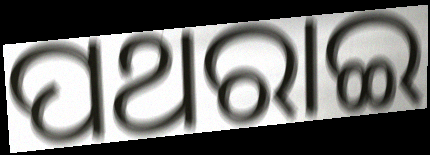
ପଥରାଇ